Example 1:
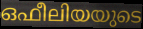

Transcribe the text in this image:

ഒഫീലിയയുടെ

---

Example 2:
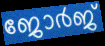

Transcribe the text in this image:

ജോർജ്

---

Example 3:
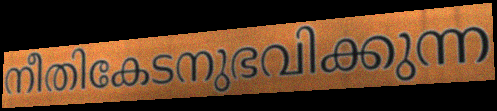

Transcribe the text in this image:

നീതികേടനുഭവിക്കുന്ന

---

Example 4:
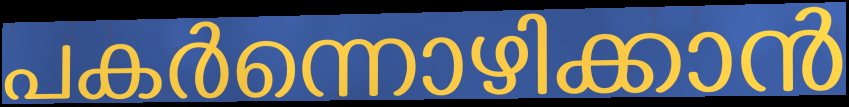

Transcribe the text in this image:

പകർന്നൊഴിക്കാൻ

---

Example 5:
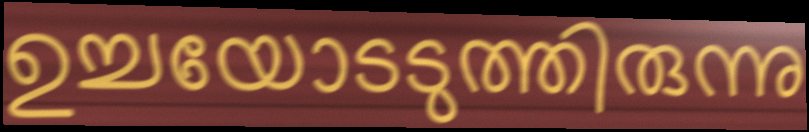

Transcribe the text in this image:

ഉച്ചയോടടുത്തിരുന്നു